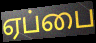
ஏப்பை